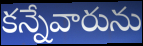
కన్నేవారును